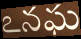
ఽనఘ